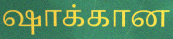
ஷாக்கான